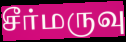
சீர்மருவு